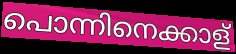
പൊന്നിനെക്കാള്